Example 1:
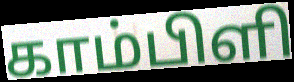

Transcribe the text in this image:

காம்பிளி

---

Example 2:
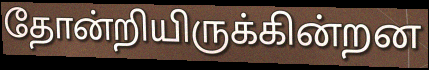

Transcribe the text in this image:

தோன்றியிருக்கின்றன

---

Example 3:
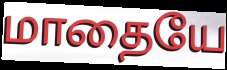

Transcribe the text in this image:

மாதையே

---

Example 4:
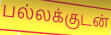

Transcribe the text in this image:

பல்லக்குடன்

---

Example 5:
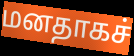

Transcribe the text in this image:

மனதாகச்